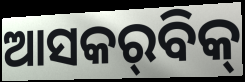
ଆସକର୍‌ବିକ୍